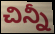
చిన్నీ